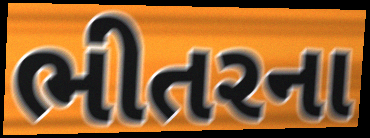
ભીતરના